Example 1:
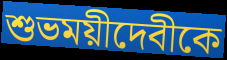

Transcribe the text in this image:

শুভময়ীদেবীকে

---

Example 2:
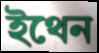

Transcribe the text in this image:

ইথেন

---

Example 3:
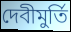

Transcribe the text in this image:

দেবীমুর্তি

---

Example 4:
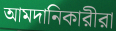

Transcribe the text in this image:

আমদানিকারীরা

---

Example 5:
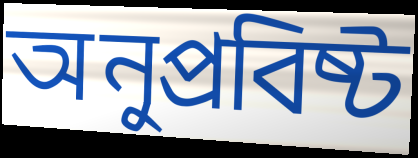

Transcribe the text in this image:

অনুপ্রবিষ্ট